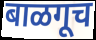
बाळगूच